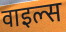
वाइल्स